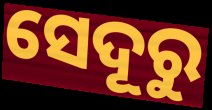
ସେଦୂରୁ